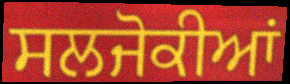
ਸਲਜੋਕੀਆਂ